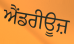
ਐਂਡਰੀਊਜ਼